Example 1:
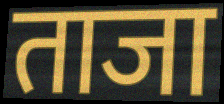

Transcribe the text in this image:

ताजा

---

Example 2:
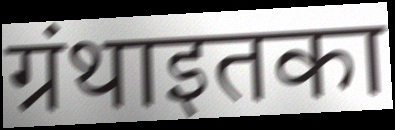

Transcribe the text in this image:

ग्रंथाइतका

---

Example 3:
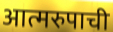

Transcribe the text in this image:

आत्मरुपाची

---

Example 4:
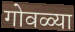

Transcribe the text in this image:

गोवळ्या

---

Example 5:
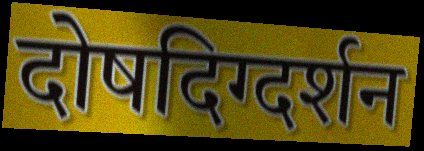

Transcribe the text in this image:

दोषदिग्दर्शन